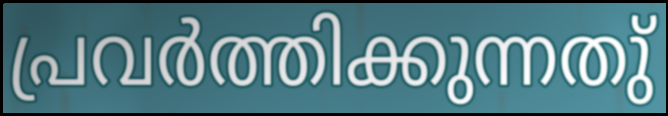
പ്രവർത്തിക്കുന്നതു്